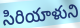
సిరియాళుని